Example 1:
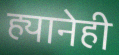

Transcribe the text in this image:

ह्यानेही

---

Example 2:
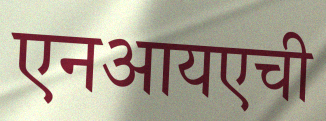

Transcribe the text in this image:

एनआयएची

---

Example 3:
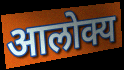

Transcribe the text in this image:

आलोक्य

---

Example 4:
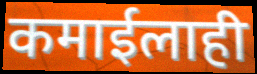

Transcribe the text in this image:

कमाईलाही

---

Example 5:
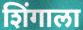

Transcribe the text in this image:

शिंगाला